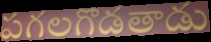
పగలగొడతాడు